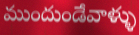
ముందుండేవాళ్ళు